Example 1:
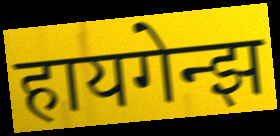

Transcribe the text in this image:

हायगेन्झ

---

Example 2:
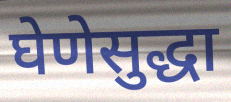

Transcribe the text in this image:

घेणेसुद्धा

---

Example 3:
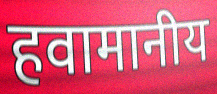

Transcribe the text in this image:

हवामानीय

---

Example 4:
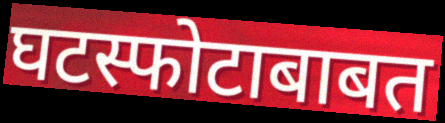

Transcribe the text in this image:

घटस्फोटाबाबत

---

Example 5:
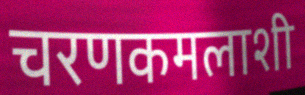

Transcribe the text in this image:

चरणकमलाशी